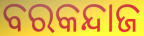
ବରକନ୍ଦାଜ